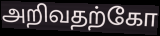
அறிவதற்கோ